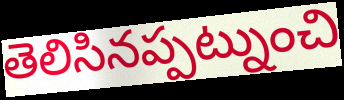
తెలిసినప్పట్నుంచి